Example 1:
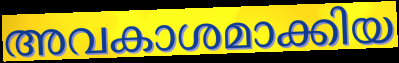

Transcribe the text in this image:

അവകാശമാക്കിയ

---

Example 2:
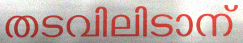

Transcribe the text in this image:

തടവിലിടാന്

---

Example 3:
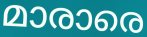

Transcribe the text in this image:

മാരാരെ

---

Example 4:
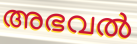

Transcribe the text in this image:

അഭവൽ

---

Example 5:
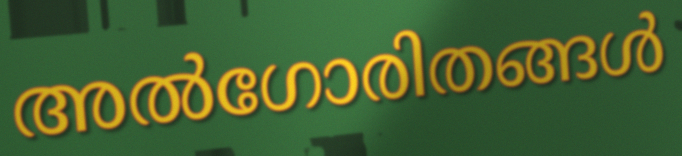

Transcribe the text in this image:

അൽഗോരിതങ്ങൾ